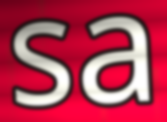
sa